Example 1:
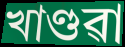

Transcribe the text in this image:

খাণ্ডৱা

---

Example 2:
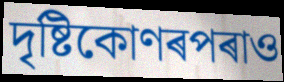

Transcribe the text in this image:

দৃষ্টিকোণৰপৰাও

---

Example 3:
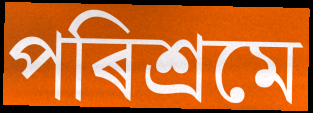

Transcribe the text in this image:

পৰিশ্ৰমে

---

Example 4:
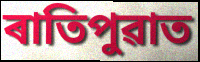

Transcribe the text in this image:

ৰাতিপুৱাত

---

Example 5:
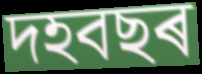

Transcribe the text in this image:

দহবছৰ